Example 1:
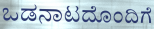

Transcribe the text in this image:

ಒಡನಾಟದೊಂದಿಗೆ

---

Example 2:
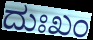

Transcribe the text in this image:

ದುಃಖಂ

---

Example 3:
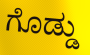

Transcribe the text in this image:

ಗೊಡ್ಡು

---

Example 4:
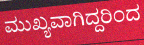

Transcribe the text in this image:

ಮುಖ್ಯವಾಗಿದ್ದರಿಂದ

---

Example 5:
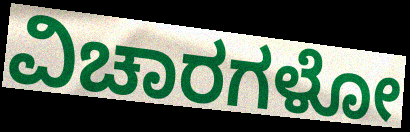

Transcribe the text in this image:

ವಿಚಾರಗಳೋ